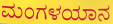
ಮಂಗಳಯಾನ